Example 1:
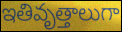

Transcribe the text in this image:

ఇతివృత్తాలుగా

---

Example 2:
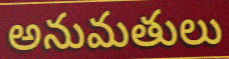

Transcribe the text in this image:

అనుమతులు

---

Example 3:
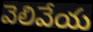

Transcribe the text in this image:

వెలివేయ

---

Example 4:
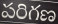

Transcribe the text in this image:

పరిగణ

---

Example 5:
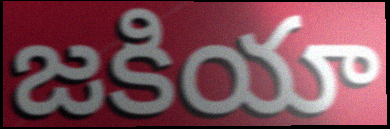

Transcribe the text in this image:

జకియా